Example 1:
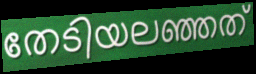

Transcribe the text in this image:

തേടിയലഞ്ഞത്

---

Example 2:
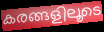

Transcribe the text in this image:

കരങ്ങളിലൂടെ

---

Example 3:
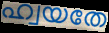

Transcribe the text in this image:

ഹ്വയതേ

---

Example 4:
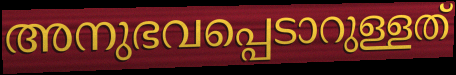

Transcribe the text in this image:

അനുഭവപ്പെടാറുള്ളത്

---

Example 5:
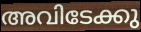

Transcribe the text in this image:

അവിടേക്കു